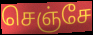
செஞ்சே